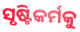
ସୃଷ୍ଟିକର୍ମକୁ